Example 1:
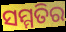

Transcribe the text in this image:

ସମ୍ମତିର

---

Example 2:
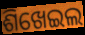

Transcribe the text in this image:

ଶିଖେଇଲ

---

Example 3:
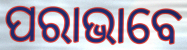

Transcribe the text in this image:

ପରାଭାବେ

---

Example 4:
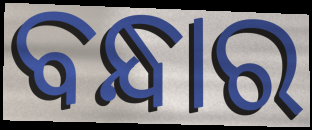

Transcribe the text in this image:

ବନ୍ଧାର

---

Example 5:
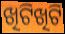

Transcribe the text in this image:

ଖିଟିଖିଟି